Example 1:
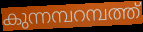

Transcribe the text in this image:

കുന്നമ്പറമ്പത്ത്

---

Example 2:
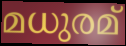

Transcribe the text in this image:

മധുരമ്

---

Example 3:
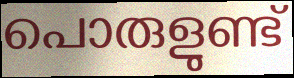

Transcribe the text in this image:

പൊരുളുണ്ട്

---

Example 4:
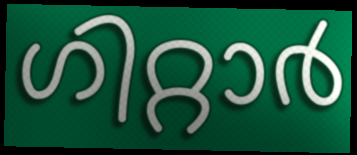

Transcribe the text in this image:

ഗിറ്റാർ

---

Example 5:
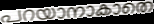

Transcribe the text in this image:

പറയാനാകാതെ